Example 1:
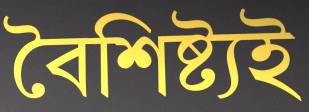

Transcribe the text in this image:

বৈশিষ্ট্যই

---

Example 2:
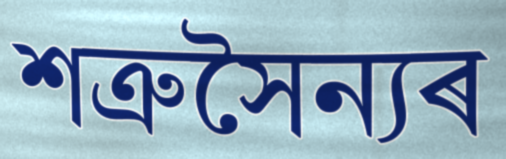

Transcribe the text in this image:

শত্ৰুসৈন্যৰ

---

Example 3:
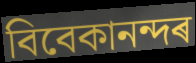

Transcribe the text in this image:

বিবেকানন্দৰ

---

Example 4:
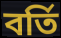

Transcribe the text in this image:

বৰ্তি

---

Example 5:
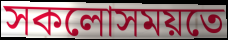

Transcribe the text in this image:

সকলোসময়তে